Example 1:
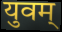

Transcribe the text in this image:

युवम्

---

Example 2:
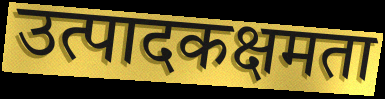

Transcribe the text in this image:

उत्पादकक्षमता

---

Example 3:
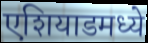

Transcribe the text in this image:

एशियाडमध्ये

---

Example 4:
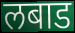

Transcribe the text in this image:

लबाड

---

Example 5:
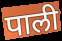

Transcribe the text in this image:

पाली